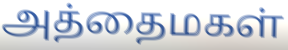
அத்தைமகள்